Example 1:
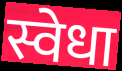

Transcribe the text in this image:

स्वेधा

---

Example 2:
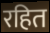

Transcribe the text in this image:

रहित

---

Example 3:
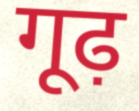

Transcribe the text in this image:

गूढ़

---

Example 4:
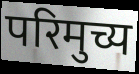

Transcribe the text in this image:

परिमुच्य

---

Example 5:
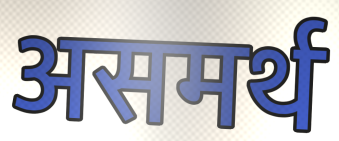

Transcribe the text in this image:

असमर्थ